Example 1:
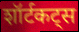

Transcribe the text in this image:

शॉर्टकट्स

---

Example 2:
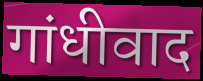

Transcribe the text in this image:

गांधीवाद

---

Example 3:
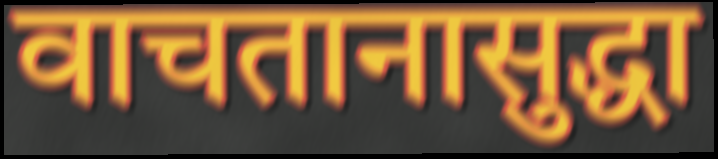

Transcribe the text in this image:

वाचतानासुद्धा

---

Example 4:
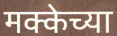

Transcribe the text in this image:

मक्केच्या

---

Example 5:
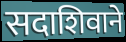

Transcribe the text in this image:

सदाशिवाने